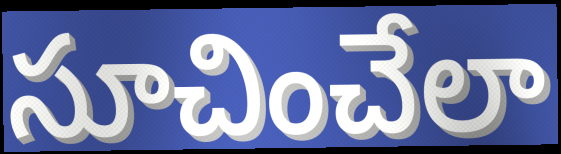
సూచించేలా